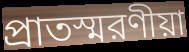
প্রাতস্মরণীয়া